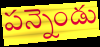
పన్నెండు